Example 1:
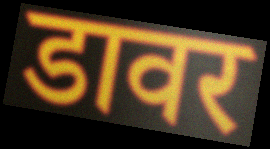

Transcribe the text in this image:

डावर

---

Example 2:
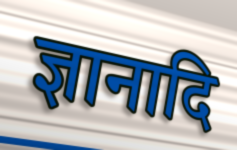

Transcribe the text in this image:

ज्ञानादि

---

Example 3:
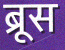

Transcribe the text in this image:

ब्रूस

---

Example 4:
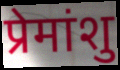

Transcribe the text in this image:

प्रेमांशु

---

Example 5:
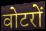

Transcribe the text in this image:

वोटरों